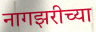
नागझरीच्या